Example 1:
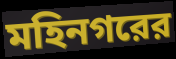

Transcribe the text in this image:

মহিনগরের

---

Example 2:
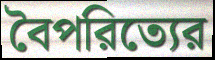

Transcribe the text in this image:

বৈপরিত্যের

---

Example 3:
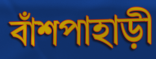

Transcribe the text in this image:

বাঁশপাহাড়ী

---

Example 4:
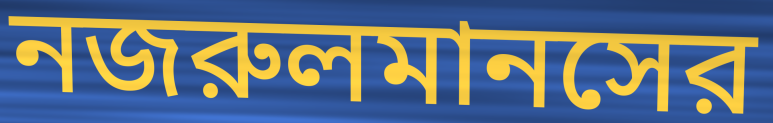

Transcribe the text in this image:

নজরুলমানসের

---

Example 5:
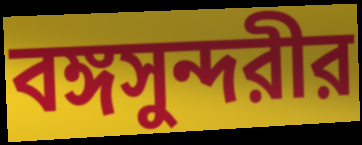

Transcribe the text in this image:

বঙ্গসুন্দরীর